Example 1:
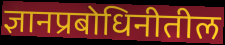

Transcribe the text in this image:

ज्ञानप्रबोधिनीतील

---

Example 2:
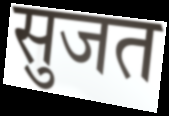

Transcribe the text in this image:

सुजत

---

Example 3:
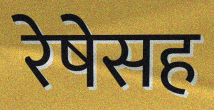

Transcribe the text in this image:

रेषेसह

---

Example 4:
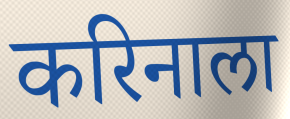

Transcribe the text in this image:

करिनाला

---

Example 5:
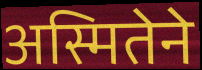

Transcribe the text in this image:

अस्मितेने